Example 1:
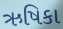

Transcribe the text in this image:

ઋષિકા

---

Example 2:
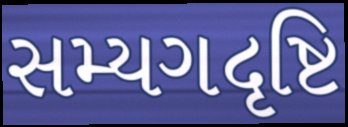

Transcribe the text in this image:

સમ્યગદૃષ્ટિ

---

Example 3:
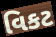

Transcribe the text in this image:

વિકટ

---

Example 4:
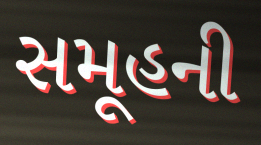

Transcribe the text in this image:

સમૂહની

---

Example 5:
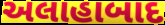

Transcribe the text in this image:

અલાહાબાદ